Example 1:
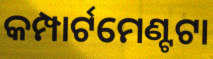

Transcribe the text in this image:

କମ୍ପାର୍ଟମେଣ୍ଟଟା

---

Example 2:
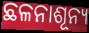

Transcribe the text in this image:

ଛଳନାଶୂନ୍ୟ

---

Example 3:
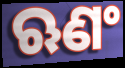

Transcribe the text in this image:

ଋଣଂ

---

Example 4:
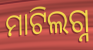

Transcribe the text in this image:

ମାଟିଲଗ୍ନ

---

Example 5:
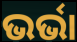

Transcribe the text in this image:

ଭର୍ଭା